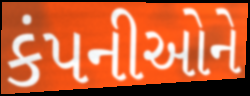
કંપનીઓને